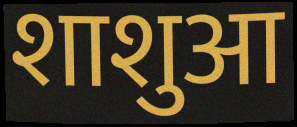
शाशुआ